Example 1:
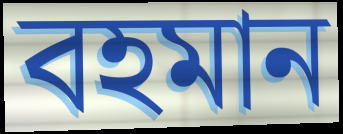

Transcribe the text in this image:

বহমান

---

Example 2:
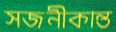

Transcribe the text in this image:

সজনীকান্ত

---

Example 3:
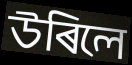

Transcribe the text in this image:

উৰিলে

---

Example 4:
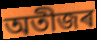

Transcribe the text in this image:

অতীজৰ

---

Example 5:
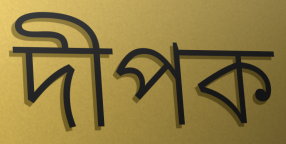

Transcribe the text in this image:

দীপক